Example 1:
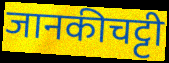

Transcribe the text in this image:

जानकीचट्टी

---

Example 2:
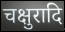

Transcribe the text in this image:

चक्षुरादि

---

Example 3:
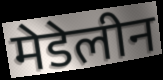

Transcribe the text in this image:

मेडेलीन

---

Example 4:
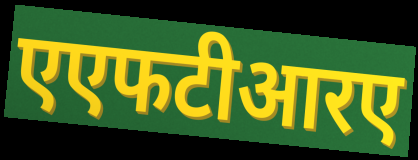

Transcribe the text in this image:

एएफटीआरए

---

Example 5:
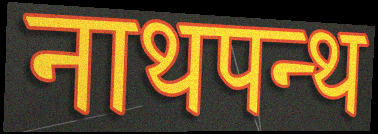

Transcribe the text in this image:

नाथपन्थ